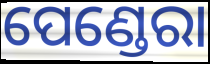
ପେଣ୍ଡେରା